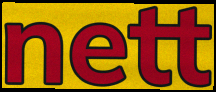
nett